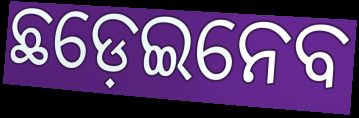
ଛଡ଼େଇନେବ